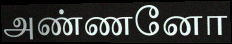
அண்ணனோ